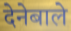
देनेबाले